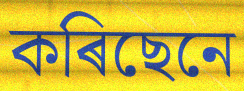
কৰিছেনে